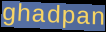
ghadpan